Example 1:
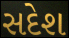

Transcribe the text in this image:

સદેશ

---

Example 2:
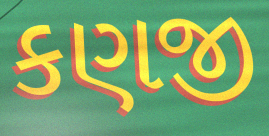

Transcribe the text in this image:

કણજી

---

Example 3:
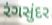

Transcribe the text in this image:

રંગસુંદર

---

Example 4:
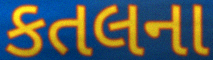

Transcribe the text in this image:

કતલના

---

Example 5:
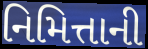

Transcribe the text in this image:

નિમિત્તાની